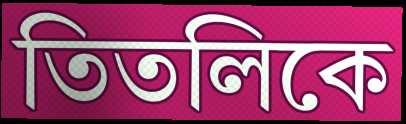
তিতলিকে